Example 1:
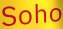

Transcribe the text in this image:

Soho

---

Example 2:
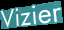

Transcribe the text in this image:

Vizier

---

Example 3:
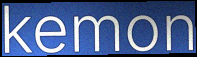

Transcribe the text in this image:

kemon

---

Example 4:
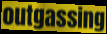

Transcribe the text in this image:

outgassing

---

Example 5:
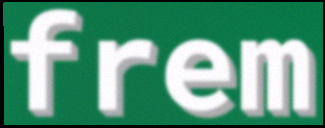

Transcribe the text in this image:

frem